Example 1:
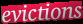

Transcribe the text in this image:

evictions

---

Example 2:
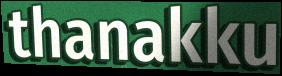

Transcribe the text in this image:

thanakku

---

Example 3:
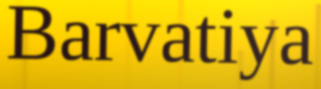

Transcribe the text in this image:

Barvatiya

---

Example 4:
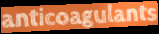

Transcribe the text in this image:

anticoagulants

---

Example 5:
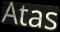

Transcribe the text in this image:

Atas